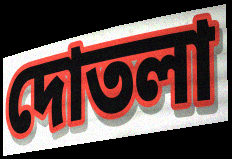
দোতলা